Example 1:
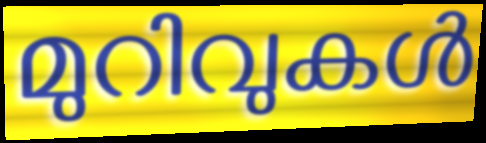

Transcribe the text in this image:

മുറിവുകൾ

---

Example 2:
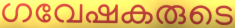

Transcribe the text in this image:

ഗവേഷകരുടെ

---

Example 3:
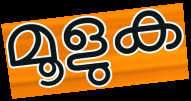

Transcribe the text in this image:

മൂളുക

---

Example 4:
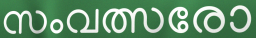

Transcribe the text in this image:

സംവത്സരോ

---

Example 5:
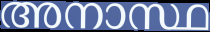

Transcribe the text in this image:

അനാസ്ഥ